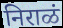
निराळं